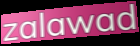
zalawad